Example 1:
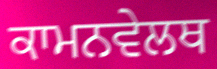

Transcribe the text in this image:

ਕਾਮਨਵੇਲਥ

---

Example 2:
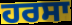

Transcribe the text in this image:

ਹਰਸਾ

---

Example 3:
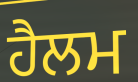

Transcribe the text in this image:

ਹੈਲਮ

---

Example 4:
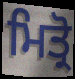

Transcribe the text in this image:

ਮਿਤ੍ਰੋ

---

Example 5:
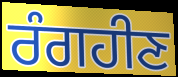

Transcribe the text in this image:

ਰੰਗਹੀਣ